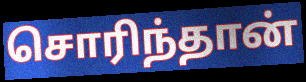
சொரிந்தான்